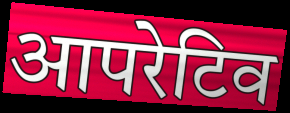
आपरेटिव